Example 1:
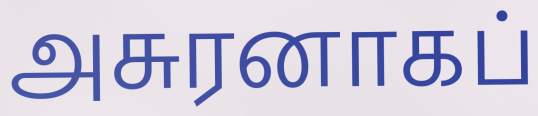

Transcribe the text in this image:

அசுரனாகப்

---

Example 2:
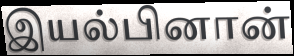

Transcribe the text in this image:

இயல்பினான்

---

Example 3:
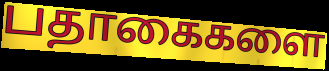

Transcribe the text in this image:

பதாகைகளை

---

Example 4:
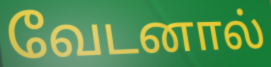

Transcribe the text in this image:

வேடனால்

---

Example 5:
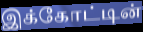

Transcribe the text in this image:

இக்கோட்டின்